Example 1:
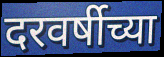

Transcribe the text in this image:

दरवर्षीच्या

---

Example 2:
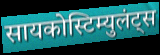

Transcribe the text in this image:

सायकोस्टिम्युलंट्स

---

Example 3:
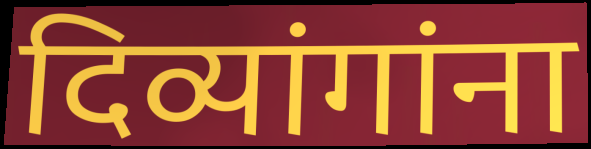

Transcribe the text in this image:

दिव्यांगांना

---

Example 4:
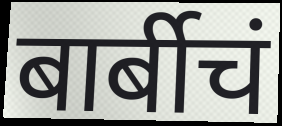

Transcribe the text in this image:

बार्बीचं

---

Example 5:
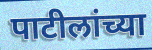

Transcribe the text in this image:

पाटीलांच्या